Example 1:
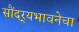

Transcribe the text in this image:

सौंदर्यभावनेचा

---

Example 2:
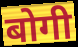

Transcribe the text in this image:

बोगी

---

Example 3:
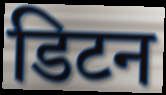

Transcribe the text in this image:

डिटन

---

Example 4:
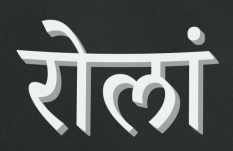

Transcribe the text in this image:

रोलां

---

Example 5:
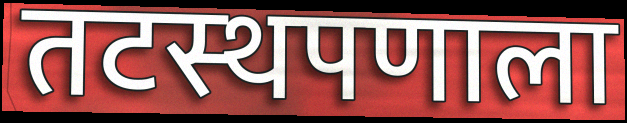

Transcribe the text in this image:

तटस्थपणाला